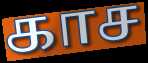
காச